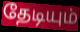
தேடியும்